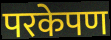
परकेपण